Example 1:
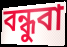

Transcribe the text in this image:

বন্ধুবা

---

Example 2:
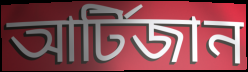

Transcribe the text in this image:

আর্টিজান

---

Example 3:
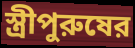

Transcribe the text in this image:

স্ত্রীপুরুষের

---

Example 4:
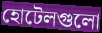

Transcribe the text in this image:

হোটেলগুলো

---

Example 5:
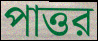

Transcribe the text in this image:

পাত্তর